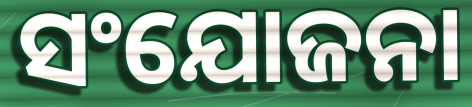
ସଂଯୋଜନା